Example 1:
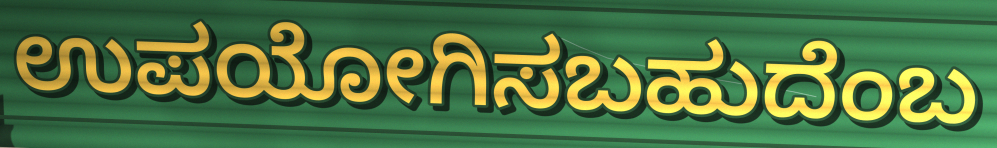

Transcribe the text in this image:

ಉಪಯೋಗಿಸಬಹುದೆಂಬ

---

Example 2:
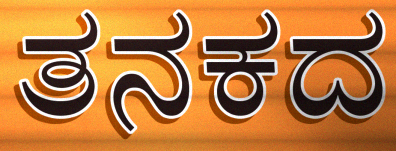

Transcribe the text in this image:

ತನಕದ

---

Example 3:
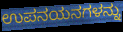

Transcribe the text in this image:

ಉಪನಯನಗಳನ್ನು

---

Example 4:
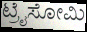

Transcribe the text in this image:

ಟ್ರೈಸೋಮಿ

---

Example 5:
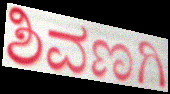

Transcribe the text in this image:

ಶಿವಣಗಿ